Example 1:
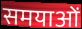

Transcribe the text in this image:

समयाओं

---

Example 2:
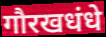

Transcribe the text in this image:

गौरखधंधे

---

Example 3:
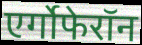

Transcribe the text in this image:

एर्गोफेरॉन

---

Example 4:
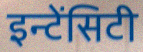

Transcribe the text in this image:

इन्टेंसिटी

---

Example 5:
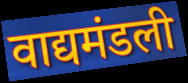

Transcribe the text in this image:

वाद्यमंडली